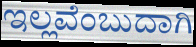
ಇಲ್ಲವೆಂಬುದಾಗಿ